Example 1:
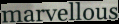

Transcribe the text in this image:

marvellous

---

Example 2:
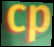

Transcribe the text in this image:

cp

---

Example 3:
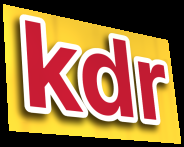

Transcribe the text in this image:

kdr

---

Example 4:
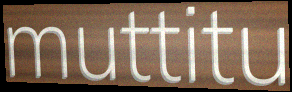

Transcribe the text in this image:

muttitu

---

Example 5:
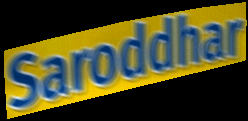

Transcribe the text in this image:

Saroddhar